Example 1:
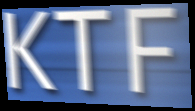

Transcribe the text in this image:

KTF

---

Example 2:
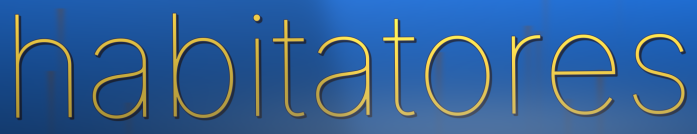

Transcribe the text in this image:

habitatores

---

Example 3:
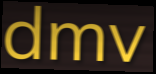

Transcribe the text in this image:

dmv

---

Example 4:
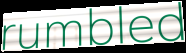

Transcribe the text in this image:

rumbled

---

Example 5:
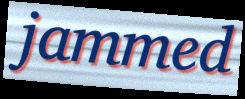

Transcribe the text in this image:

jammed